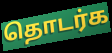
தொடர்க